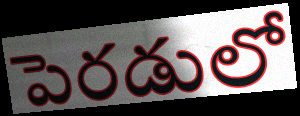
పెరడులో